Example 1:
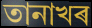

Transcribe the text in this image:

তানাখৰ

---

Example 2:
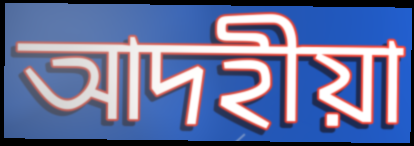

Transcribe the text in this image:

আদহীয়া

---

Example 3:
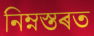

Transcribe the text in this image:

নিম্নস্তৰত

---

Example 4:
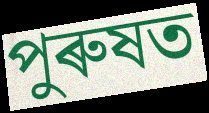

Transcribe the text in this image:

পুৰুষত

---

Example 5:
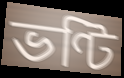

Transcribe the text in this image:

ভণ্টি